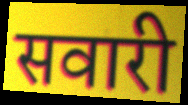
सवारी